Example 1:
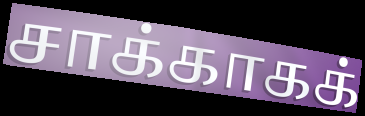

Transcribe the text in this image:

சாக்காகக்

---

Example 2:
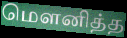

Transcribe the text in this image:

மௌனித்த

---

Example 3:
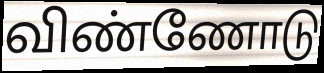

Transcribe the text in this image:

விண்ணோடு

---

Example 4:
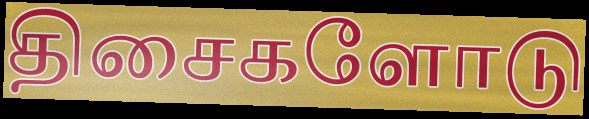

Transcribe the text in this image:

திசைகளோடு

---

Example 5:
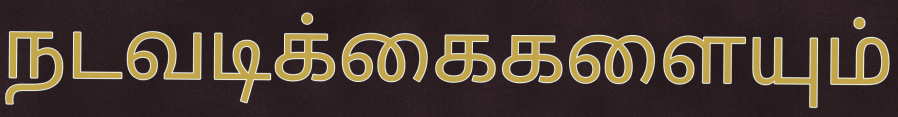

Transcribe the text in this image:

நடவடிக்கைகளையும்